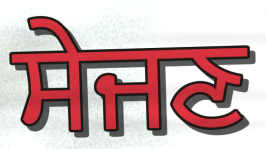
ਸੇਜਣ